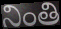
నింతి